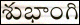
శుభాంగి